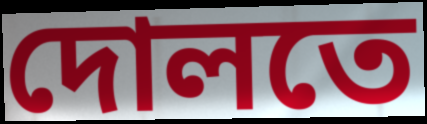
দোলতে